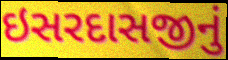
ઇસરદાસજીનું